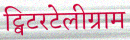
ट्विटरटेलीग्राम